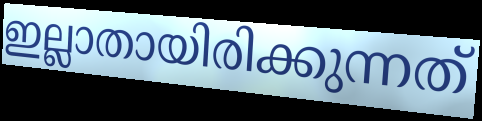
ഇല്ലാതായിരിക്കുന്നത്